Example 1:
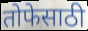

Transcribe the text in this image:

तोफेसाठी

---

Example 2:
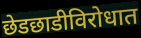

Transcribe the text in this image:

छेडछाडीविरोधात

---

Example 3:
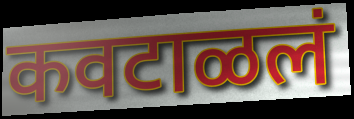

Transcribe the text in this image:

कवटाळलं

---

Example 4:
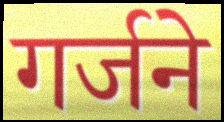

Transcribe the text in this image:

गर्जने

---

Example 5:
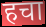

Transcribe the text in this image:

हचा